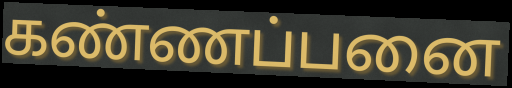
கண்ணப்பனை